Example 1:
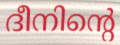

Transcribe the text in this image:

ദീനിന്റെ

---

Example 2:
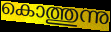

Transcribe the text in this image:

കൊത്തുന്നു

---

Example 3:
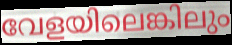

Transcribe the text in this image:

വേളയിലെങ്കിലും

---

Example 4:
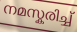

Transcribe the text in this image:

നമസ്കരിച്ച്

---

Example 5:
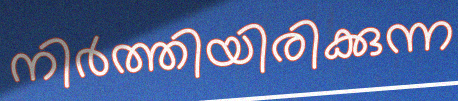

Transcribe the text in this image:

നിർത്തിയിരിക്കുന്ന